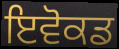
ਇਵੋਕਡ